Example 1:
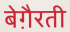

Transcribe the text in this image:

बेग़ैरती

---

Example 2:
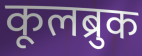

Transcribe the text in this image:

कूलब्रुक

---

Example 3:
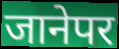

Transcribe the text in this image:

जानेपर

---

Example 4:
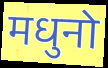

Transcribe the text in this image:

मधुनो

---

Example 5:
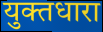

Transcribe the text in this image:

युक्तधारा